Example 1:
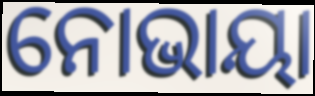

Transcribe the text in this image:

ନୋଭାୟା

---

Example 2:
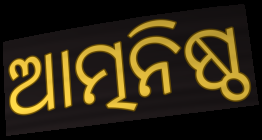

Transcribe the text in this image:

ଆତ୍ମନିଷ୍ଠ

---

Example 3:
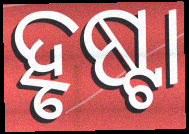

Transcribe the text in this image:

ହୃଷ୍ଟା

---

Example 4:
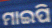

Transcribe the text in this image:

ମାଇପି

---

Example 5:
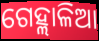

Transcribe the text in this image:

ଗେହ୍ଲାଳିଆ